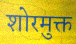
शोरमुक्त